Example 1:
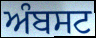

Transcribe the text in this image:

ਅੰਬਸਟ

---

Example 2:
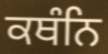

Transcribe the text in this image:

ਕਥੰਨਿ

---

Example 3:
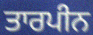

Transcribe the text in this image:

ਤਾਰਪੀਨ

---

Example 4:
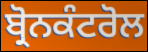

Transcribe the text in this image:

ਬ੍ਰੋਨਕੰਟਰੋਲ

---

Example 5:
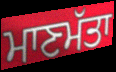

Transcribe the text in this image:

ਮਾਣਮੱਤਾ